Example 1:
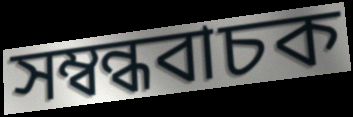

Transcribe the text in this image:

সম্বন্ধবাচক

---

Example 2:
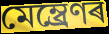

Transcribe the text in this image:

মেম্ব্ৰেণৰ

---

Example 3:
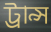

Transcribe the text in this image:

ট্ৰান্স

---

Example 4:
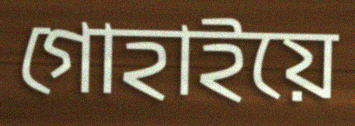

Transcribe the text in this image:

গোহাইয়ে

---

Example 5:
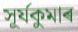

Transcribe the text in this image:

সূৰ্যকুমাৰ